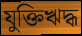
যুক্তিঋদ্ধ